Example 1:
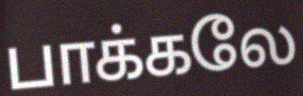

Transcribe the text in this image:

பாக்கலே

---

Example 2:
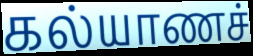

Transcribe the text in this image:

கல்யாணச்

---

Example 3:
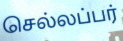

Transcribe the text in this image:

செல்லப்பர்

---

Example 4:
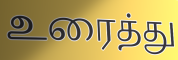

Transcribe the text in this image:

உரைத்து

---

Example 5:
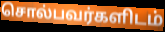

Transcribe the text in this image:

சொல்பவர்களிடம்